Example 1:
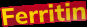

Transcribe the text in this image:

Ferritin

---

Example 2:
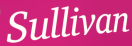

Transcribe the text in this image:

Sullivan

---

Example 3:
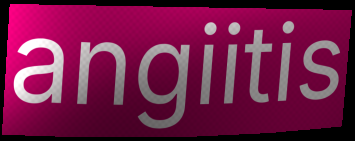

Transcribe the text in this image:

angiitis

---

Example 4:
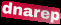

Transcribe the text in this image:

dnarep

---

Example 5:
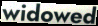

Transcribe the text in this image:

widowed